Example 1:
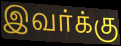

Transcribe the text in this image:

இவர்க்கு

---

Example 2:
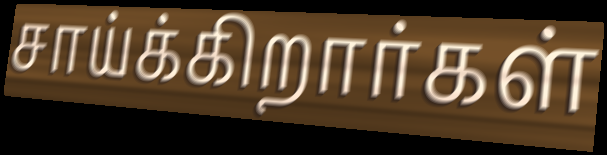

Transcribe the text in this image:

சாய்க்கிறார்கள்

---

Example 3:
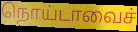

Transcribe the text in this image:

நொய்டாவைச்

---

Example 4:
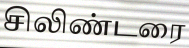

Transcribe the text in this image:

சிலிண்டரை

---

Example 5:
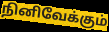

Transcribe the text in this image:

நினிவேக்கும்